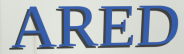
ARED